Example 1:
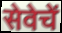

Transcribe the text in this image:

सेवेचें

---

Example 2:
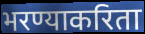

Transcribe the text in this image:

भरण्याकरिता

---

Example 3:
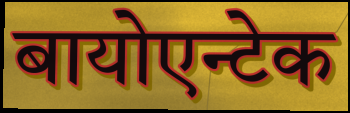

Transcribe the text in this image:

बायोएन्टेक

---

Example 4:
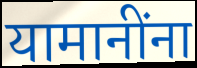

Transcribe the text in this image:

यामानींना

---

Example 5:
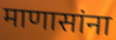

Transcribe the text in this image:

माणासांना